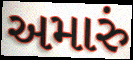
અમારું